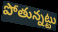
పోతున్నట్టు